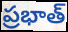
ప్రభాత్